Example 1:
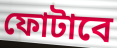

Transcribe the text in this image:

ফোটাবে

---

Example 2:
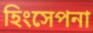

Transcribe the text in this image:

হিংসেপনা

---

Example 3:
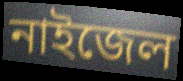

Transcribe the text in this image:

নাইজেল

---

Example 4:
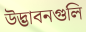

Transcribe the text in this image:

উদ্ভাবনগুলি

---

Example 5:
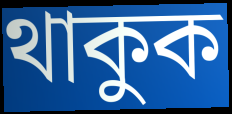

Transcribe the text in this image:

থাকুক